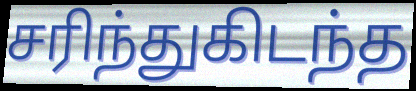
சரிந்துகிடந்த